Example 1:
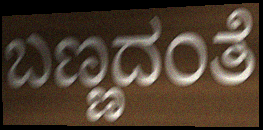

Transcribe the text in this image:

ಬಣ್ಣದಂತೆ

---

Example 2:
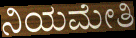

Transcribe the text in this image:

ನಿಯಮೇತಿ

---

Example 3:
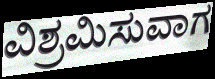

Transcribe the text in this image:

ವಿಶ್ರಮಿಸುವಾಗ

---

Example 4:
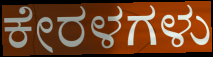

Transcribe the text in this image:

ಕೇರಳಗಳು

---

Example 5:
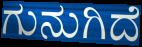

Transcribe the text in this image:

ಗುನುಗಿದೆ